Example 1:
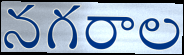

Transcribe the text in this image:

నగరాల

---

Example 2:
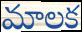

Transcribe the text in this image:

మాలక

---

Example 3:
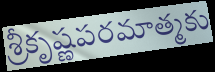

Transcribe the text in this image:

శ్రీకృష్ణపరమాత్మకు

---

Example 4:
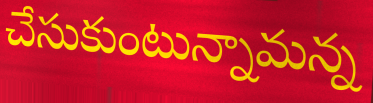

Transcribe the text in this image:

చేసుకుంటున్నామన్న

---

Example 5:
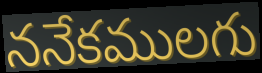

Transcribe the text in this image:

ననేకములగు